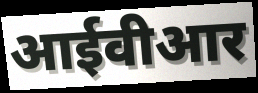
आईवीआर